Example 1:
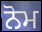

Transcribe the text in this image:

ਨੋਮ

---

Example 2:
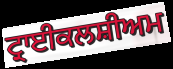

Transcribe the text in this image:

ਟ੍ਰਾਈਕਲਸ਼ੀਅਮ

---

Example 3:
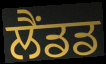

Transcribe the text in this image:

ਲੈਂਡਡ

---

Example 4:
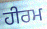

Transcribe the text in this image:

ਹੀਰਮ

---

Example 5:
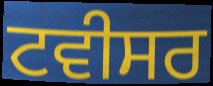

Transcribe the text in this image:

ਟਵੀਸਰ